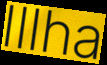
Illha